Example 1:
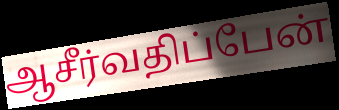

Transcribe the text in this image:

ஆசீர்வதிப்பேன்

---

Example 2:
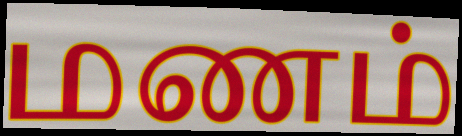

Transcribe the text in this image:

மணம்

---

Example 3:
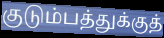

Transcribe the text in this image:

குடும்பத்துக்குத்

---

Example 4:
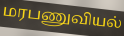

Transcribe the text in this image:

மரபணுவியல்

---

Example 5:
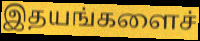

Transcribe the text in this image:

இதயங்களைச்